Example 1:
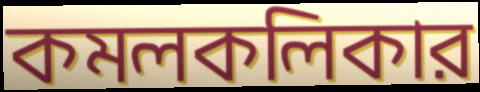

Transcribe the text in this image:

কমলকলিকার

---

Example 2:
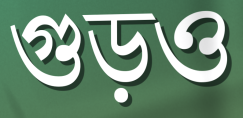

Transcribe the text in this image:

গুড়ও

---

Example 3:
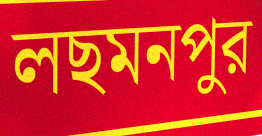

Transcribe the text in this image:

লছমনপুর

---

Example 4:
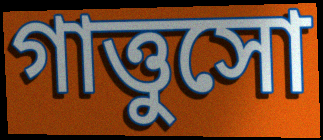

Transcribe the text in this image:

গাত্তুসো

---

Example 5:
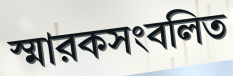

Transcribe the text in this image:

স্মারকসংবলিত